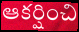
ఆకర్షించి